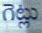
గెట్లు